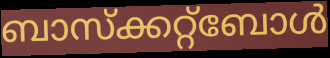
ബാസ്ക്കറ്റ്ബോൾ